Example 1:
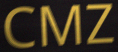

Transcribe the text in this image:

CMZ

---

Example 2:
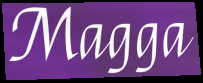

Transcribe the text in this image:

Magga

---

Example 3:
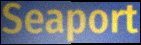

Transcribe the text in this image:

Seaport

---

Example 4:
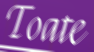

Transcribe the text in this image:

Toate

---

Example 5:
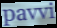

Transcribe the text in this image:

pavvi